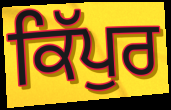
ਕਿੱਪੁਰ